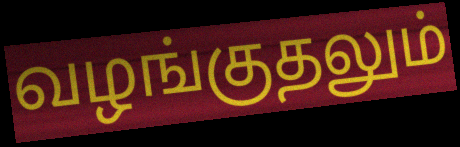
வழங்குதலும்